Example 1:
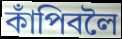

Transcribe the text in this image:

কাঁপিবলৈ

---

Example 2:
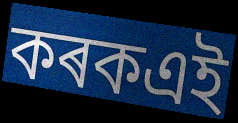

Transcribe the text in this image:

কৰকএই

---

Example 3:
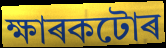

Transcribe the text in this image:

ক্ষাৰকটোৰ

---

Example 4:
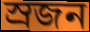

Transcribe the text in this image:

স্ৰজন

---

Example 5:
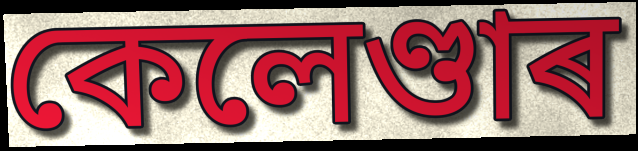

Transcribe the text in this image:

কেলেণ্ডাৰ